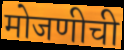
मोजणीची